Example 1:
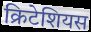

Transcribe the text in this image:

क्रिटेशियस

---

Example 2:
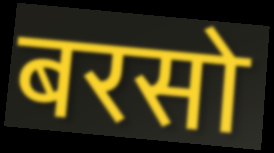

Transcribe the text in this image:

बरसो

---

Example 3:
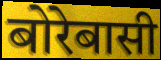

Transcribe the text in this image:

बोरेबासी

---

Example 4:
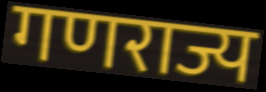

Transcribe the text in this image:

गणराज्य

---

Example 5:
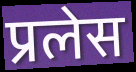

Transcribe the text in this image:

प्रलेस